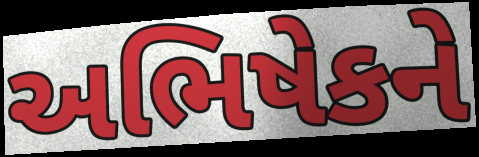
અભિષેકને